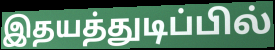
இதயத்துடிப்பில்